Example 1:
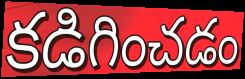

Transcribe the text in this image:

కడిగించడం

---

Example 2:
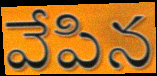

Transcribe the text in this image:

వేపిన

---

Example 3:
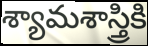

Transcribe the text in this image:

శ్యామశాస్త్రికి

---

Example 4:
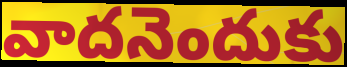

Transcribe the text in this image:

వాదనెందుకు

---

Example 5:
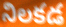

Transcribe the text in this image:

నిలకడ